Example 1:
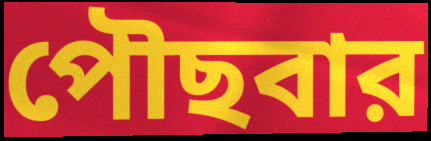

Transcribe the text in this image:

পৌছবার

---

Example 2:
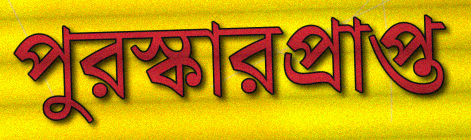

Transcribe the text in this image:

পুরস্কারপ্রাপ্ত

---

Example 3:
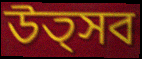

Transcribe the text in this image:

উত্সব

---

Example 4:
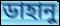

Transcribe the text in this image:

ডাহানু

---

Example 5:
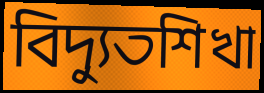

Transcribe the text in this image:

বিদ্যুতশিখা